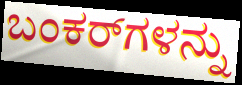
ಬಂಕರ್‌ಗಳನ್ನು